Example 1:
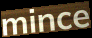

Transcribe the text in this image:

mince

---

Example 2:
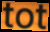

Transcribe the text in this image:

tot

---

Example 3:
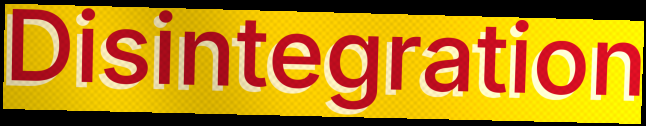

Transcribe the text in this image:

Disintegration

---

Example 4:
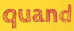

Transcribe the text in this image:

quand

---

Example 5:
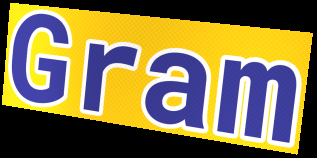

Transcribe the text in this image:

Gram